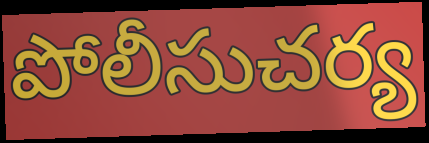
పోలీసుచర్య